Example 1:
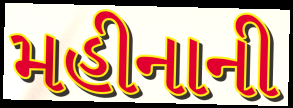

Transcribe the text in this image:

મહીનાની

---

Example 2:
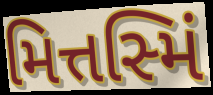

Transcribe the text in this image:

મિત્તસ્મિં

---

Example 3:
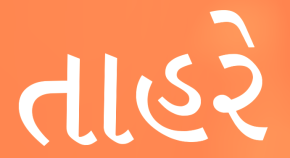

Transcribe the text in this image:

તાહરે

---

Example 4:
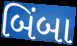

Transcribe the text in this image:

બિંબા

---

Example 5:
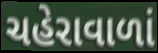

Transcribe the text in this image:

ચહેરાવાળાં